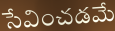
సేవించడమే